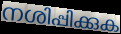
നശിപ്പിക്കുക